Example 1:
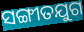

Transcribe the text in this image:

ସଙ୍ଗୀତଯୁଗ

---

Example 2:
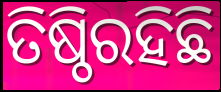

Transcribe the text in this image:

ତିଷ୍ଠିରହିଛି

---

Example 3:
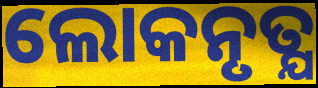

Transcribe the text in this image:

ଲୋକନୃତ୍ଯ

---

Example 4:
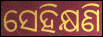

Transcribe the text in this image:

ସେହିକ୍ଷଣି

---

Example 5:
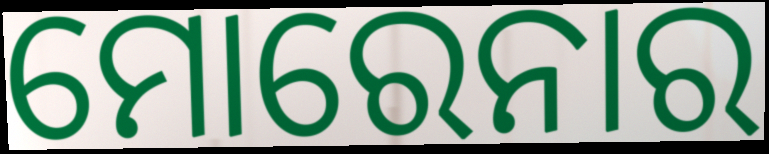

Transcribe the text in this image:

ମୋରେନାର